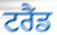
ਟਰੈਂਡ